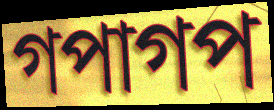
গপাগপ